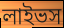
লাইভস